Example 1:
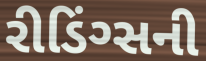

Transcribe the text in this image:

રીડિંગ્સની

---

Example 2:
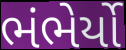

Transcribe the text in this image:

ભંભેર્યો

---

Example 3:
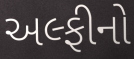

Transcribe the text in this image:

અલ્ફીનો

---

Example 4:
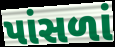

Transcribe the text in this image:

પાંસળાં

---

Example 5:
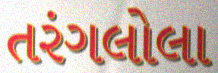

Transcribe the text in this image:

તરંગલોલા